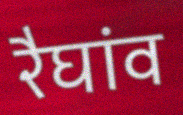
रैघांव